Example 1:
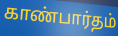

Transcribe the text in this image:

காண்பார்தம்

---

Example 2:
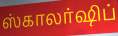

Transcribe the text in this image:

ஸ்காலர்ஷிப்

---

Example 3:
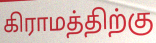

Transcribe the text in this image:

கிராமத்திற்கு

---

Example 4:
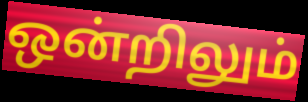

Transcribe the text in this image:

ஒன்றிலும்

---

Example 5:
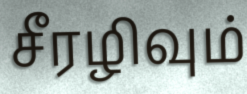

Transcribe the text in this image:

சீரழிவும்